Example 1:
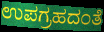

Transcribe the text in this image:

ಉಪಗ್ರಹದಂತೆ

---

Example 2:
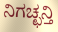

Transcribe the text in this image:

ನಿಗಚ್ಛನ್ತಿ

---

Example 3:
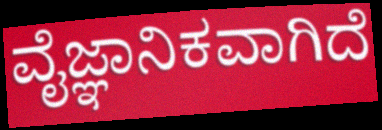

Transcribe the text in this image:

ವೈಜ್ಞಾನಿಕವಾಗಿದೆ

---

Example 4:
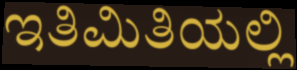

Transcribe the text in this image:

ಇತಿಮಿತಿಯಲ್ಲಿ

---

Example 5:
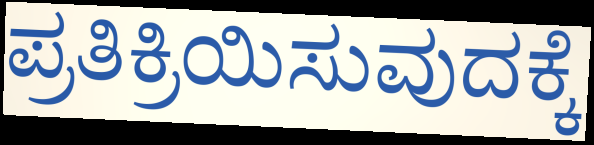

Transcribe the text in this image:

ಪ್ರತಿಕ್ರಿಯಿಸುವುದಕ್ಕೆ